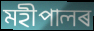
মহীপালৰ